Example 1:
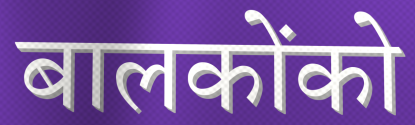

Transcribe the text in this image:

बालकोंको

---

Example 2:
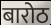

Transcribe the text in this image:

बारोठ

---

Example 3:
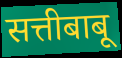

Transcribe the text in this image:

सत्तीबाबू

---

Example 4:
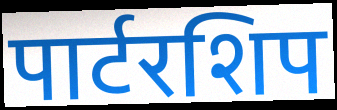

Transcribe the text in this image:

पार्टरशिप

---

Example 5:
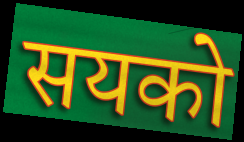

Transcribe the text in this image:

सयको